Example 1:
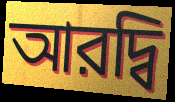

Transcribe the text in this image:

আরদ্বি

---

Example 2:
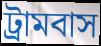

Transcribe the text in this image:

ট্রামবাস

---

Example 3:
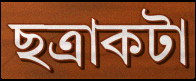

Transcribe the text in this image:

ছত্রাকটা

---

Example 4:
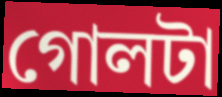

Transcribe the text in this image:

গোলটা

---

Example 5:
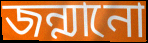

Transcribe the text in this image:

জন্মানো